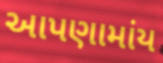
આપણામાંય